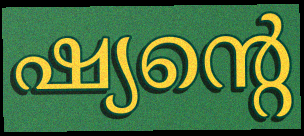
ഷ്യന്റെ